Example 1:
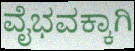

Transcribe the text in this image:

ವೈಭವಕ್ಕಾಗಿ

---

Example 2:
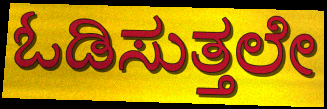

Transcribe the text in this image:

ಓಡಿಸುತ್ತಲೇ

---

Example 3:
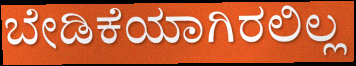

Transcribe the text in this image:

ಬೇಡಿಕೆಯಾಗಿರಲಿಲ್ಲ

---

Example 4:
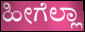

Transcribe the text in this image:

ಹೀಗೆಲ್ಲಾ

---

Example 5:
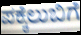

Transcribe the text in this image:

ಪಕ್ಕೆಲುಬಿಗೆ